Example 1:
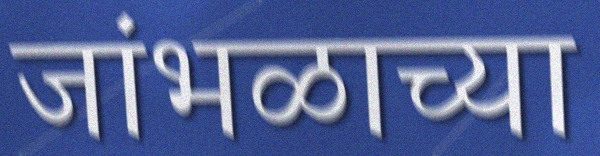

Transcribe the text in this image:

जांभळाच्या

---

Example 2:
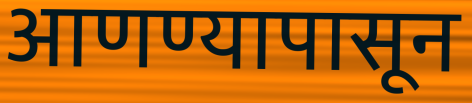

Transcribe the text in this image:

आणण्यापासून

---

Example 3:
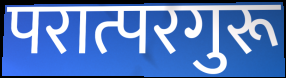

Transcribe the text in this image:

परात्परगुरू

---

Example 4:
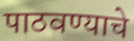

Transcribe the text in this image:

पाठवण्याचे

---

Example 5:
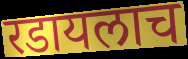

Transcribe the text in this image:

रडायलाच